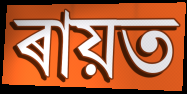
ৰায়ত